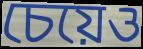
চেয়েও